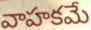
వాహకమే